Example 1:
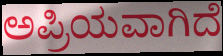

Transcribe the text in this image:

ಅಪ್ರಿಯವಾಗಿದೆ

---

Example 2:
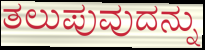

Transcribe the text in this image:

ತಲುಪುವುದನ್ನು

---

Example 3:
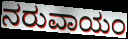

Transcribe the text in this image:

ನರುವಾಯಂ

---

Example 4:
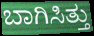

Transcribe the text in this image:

ಬಾಗಿಸಿತ್ತು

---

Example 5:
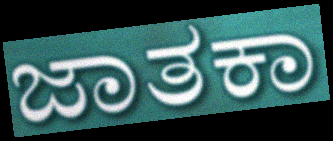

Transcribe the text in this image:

ಜಾತಕಾ